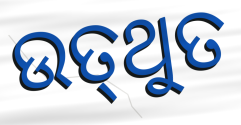
ଉତ୍‌ଥୁତ